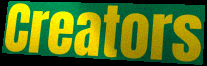
Creators